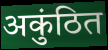
अकुंठित